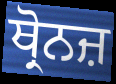
ਥ੍ਰੋਨਜ਼